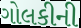
ગોલકીની